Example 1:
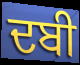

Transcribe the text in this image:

ਦਬੀ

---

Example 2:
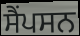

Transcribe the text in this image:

ਸੈਂਪਸਨ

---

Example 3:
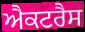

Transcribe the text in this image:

ਐਕਟਰੈਸ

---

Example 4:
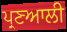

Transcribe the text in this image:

ਪ੍ਰਣਆਲੀ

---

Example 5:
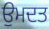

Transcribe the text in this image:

ਉਮਦਤ